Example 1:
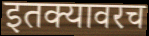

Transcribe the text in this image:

इतक्यावरच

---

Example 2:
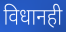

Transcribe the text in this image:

विधानही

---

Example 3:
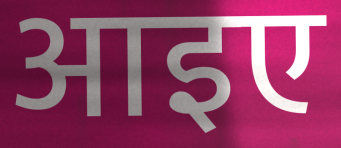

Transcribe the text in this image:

आइए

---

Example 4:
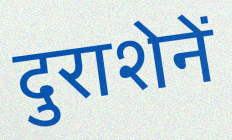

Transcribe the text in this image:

दुराशेनें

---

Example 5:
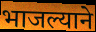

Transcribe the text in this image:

भाजल्याने